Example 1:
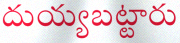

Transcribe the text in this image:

దుయ్యబట్టారు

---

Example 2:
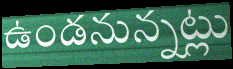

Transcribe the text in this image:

ఉండనున్నట్లు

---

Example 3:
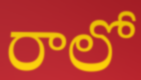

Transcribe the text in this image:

రాలో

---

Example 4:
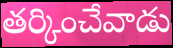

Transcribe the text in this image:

తర్కించేవాడు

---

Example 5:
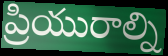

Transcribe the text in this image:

ప్రియురాల్ని